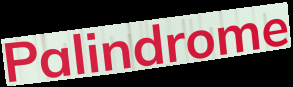
Palindrome